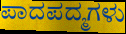
ಪಾದಪದ್ಮಗಳು